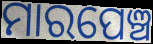
ମାରପେଞ୍ଚ